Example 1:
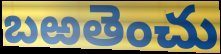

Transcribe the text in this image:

బఱతెంచు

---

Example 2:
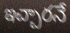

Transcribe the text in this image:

ఇచ్చారనే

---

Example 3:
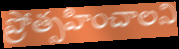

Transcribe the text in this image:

ప్రోత్సహించాలని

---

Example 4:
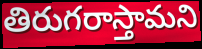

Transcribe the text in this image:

తిరుగరాస్తామని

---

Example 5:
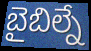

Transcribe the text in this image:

బైబిల్నే